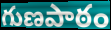
గుణపాఠం